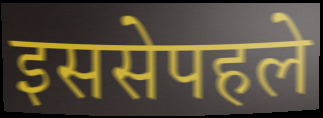
इससेपहले